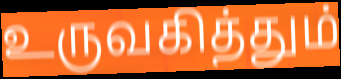
உருவகித்தும்